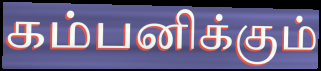
கம்பனிக்கும்